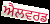
ਐਲਵਰਡ